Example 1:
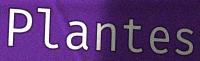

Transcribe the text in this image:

Plantes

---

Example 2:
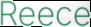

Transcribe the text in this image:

Reece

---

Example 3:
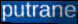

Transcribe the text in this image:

putrane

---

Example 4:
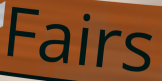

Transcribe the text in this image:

Fairs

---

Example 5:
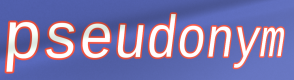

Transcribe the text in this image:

pseudonym